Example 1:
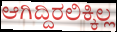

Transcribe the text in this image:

ಆಗಿದ್ದಿರಲಿಕ್ಕಿಲ್ಲ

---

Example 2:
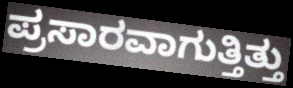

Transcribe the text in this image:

ಪ್ರಸಾರವಾಗುತ್ತಿತ್ತು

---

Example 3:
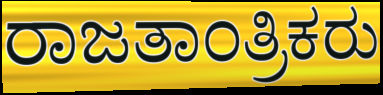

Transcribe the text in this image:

ರಾಜತಾಂತ್ರಿಕರು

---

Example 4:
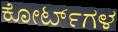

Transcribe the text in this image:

ಕೋರ್ಟ್‌ಗಳ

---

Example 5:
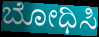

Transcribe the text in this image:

ಬೋಧಿಸಿ